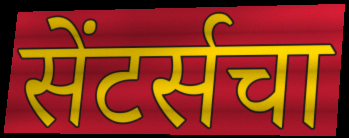
सेंटर्सचा